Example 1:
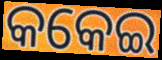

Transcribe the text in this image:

କକେଇ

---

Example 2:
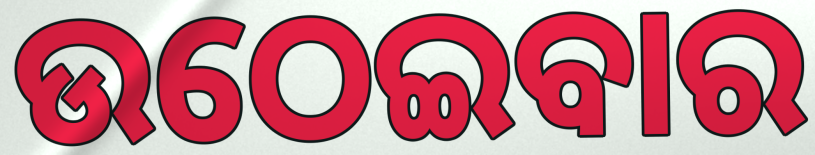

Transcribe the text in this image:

ଉଠେଇବାର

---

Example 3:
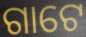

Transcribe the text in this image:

ଗାଟେ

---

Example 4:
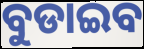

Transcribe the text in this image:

ବୁଡାଇବ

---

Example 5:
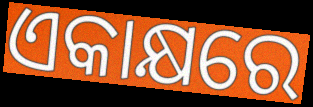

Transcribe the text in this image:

ଏକାକ୍ଷରେ